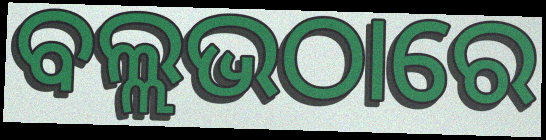
ବଲ୍ଲଭଠାରେ